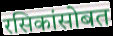
रसिकांसोबत